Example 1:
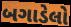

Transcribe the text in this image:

બગાડેલો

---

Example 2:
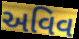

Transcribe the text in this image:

અવિવ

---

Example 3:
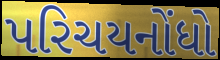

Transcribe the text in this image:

પરિચયનોંધો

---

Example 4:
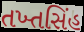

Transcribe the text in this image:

તખ્તસિંહ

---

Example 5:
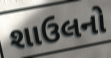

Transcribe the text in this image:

શાઉલનો